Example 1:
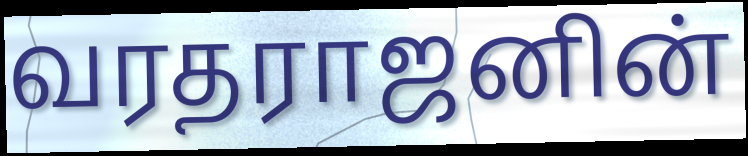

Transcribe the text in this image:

வரதராஜனின்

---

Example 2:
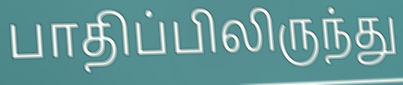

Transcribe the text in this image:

பாதிப்பிலிருந்து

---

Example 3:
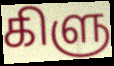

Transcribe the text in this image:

கிளு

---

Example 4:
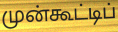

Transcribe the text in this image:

முன்கூட்டிப்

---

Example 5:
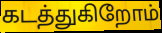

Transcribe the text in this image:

கடத்துகிறோம்